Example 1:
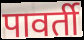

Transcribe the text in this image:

पावर्ती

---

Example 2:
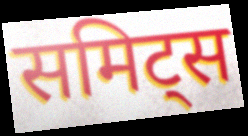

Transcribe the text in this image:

समिट्स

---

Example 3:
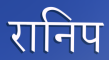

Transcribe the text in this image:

रानिप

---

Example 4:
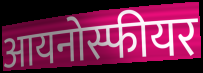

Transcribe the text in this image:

आयनोस्फीयर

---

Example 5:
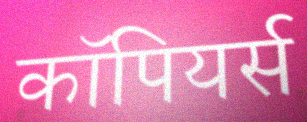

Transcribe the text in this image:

कॉपियर्स